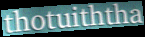
thotuiththa